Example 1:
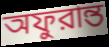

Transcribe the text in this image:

অফুরান্ত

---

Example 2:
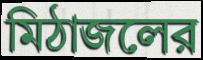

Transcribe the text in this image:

মিঠাজলের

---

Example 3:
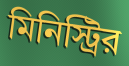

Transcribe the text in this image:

মিনিস্ট্রির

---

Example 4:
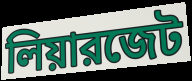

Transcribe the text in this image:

লিয়ারজেট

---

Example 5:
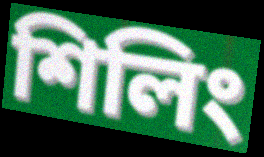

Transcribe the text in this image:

শিলিং